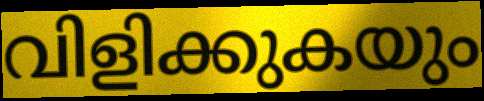
വിളിക്കുകയും